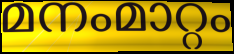
മനംമാറ്റം